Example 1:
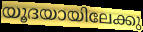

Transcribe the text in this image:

യൂദയായിലേക്കു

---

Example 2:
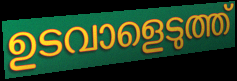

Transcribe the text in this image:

ഉടവാളെടുത്ത്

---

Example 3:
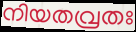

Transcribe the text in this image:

നിയതവ്രതഃ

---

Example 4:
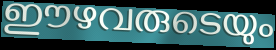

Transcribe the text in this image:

ഈഴവരുടെയും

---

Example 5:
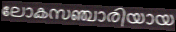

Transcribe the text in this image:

ലോകസഞ്ചാരിയായ